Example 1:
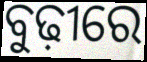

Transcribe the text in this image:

ବୁଢ଼ୀରେ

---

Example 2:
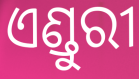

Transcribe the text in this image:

ଏଣ୍ଡୁରୀ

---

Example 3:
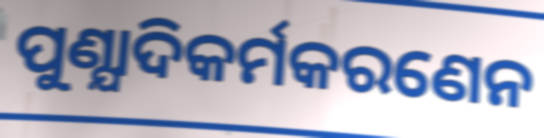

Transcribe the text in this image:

ପୁଣ୍ଯାଦିକର୍ମକରଣେନ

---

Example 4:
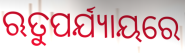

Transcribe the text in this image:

ଋତୁପର୍ଯ୍ୟାୟରେ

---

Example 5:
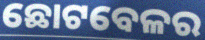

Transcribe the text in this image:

ଛୋଟବେଳର